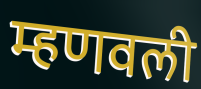
म्हणवली